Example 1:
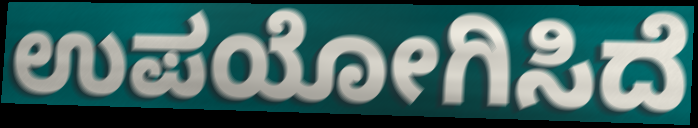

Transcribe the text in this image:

ಉಪಯೋಗಿಸಿದೆ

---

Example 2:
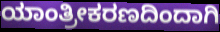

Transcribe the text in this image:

ಯಾಂತ್ರೀಕರಣದಿಂದಾಗಿ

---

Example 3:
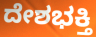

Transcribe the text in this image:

ದೇಶಭಕ್ತಿ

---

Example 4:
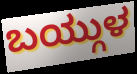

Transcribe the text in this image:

ಬಯ್ಗುಳ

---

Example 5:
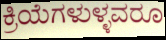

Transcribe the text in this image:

ಕ್ರಿಯೆಗಳುಳ್ಳವರೂ